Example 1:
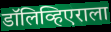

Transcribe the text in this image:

डॉलिव्हिएराला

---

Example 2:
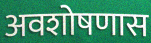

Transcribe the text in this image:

अवशोषणास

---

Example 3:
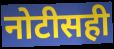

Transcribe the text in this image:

नोटीसही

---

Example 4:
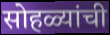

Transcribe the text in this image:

सोहळ्यांची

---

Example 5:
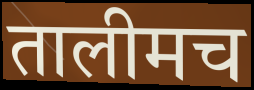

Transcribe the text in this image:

तालीमच